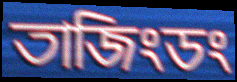
তাজিংডং